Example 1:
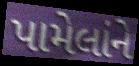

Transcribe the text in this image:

પામેલાંને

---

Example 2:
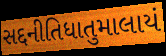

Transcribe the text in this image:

સદ્દનીતિધાતુમાલાયં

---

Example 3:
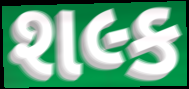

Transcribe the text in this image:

શલ્ક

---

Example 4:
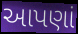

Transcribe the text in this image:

આપણાં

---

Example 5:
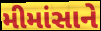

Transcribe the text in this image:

મીમાંસાને